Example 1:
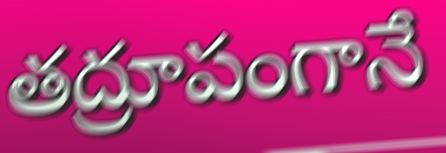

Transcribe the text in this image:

తద్రూపంగానే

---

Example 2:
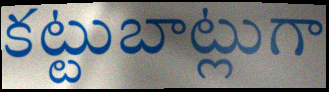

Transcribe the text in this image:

కట్టుబాట్లుగా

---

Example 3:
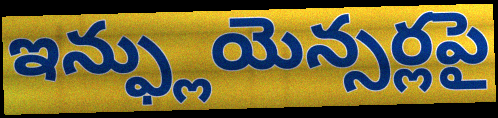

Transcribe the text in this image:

ఇన్ఫ్లుయెన్సర్లపై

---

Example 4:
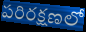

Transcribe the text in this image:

పరిరక్షణలో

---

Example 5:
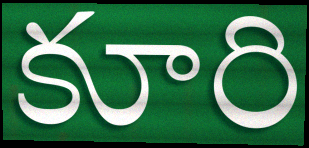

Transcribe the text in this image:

కూరి